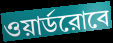
ওয়ার্ডরোবে